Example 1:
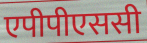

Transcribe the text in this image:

एपीपीएससी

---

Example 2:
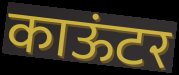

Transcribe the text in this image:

काऊंटर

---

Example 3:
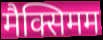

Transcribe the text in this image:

मैक्सिमम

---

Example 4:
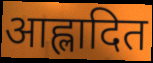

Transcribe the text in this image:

आह्लादित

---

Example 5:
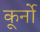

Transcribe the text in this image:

कूर्नो